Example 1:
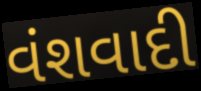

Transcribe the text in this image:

વંશવાદી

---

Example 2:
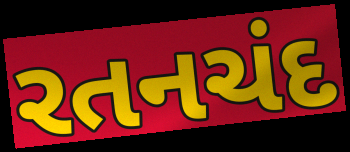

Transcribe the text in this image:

રતનચંદ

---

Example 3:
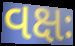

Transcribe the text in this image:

વક્ષઃ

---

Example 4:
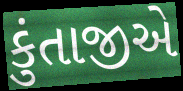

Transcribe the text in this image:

કુંતાજીએ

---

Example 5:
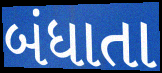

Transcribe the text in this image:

બંધાતા